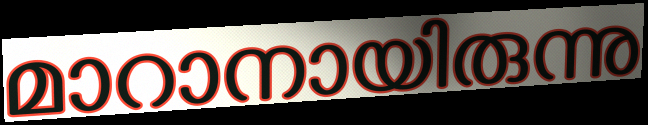
മാറാനായിരുന്നു